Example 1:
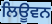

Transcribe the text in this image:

ਲਿਊਵਨ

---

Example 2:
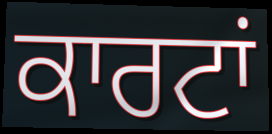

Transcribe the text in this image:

ਕਾਰਟਾਂ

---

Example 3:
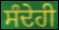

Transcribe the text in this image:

ਸੰਦੇਹੀ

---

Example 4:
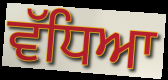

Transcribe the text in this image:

ਵੱਧਿਆ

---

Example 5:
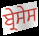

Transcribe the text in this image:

ਬ੍ਰੇਸੇਸ